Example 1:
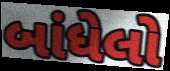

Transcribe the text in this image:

બાંધેલો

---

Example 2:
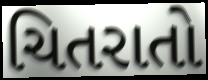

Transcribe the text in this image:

ચિતરાતો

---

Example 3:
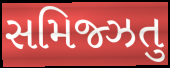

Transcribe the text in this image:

સમિજ્ઝતુ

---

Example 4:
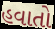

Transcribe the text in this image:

હવાતો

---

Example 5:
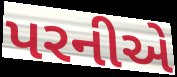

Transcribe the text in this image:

પરનીએ